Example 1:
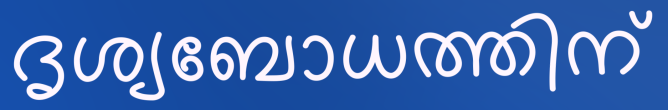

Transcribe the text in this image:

ദൃശ്യബോധത്തിന്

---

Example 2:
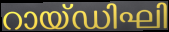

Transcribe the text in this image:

റായ്ഡിഘി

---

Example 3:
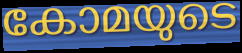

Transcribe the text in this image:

കോമയുടെ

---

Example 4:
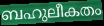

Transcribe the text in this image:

ബഹുലീകതം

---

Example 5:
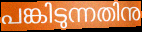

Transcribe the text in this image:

പങ്കിടുന്നതിനു